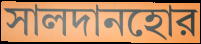
সালদানহোর